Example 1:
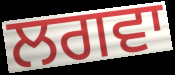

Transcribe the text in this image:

ਲਗਵਾ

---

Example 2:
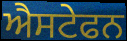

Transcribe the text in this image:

ਐਸਟੇਫਨ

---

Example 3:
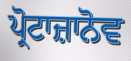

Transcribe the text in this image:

ਪ੍ਰੋਟਾਜ਼ਾਨੋਵ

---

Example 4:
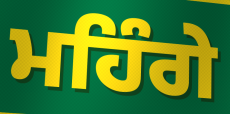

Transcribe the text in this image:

ਮਹਿੰਗੇ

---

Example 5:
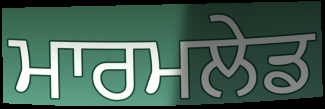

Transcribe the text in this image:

ਮਾਰਮਲੇਡ